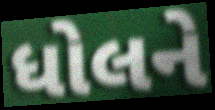
ધોલને